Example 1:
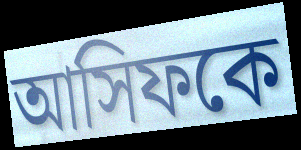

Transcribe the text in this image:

আসিফকে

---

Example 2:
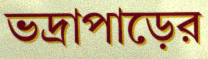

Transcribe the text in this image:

ভদ্রাপাড়ের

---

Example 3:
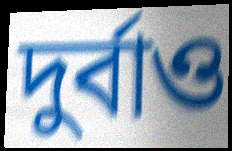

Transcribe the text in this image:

দুর্বাও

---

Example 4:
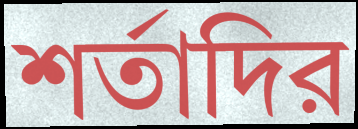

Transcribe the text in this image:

শর্তাদির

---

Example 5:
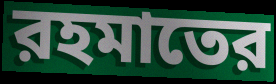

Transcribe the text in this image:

রহমাতের